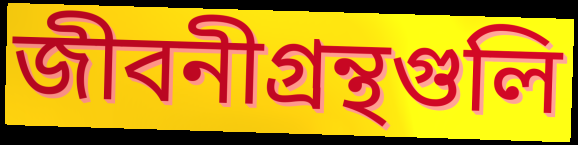
জীবনীগ্রন্থগুলি